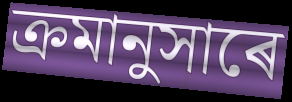
ক্ৰমানুসাৰে